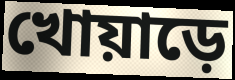
খোয়াড়ে